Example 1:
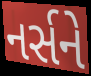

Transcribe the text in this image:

નર્સને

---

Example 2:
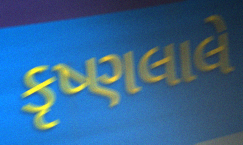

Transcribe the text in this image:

કૃષ્ણલાલે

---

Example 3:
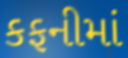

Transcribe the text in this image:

કફનીમાં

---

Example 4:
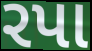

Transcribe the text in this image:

રપા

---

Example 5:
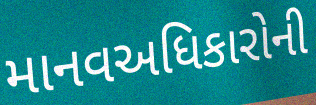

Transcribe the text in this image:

માનવઅધિકારોની